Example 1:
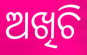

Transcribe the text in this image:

ଅଖିଚି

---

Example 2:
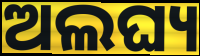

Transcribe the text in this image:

ଅଲଘ୍ୟ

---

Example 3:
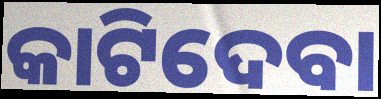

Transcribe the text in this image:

କାଟିଦେବା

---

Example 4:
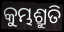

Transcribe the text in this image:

କୁମ୍ଭଶ୍ରୁତି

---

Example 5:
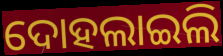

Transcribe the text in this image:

ଦୋହଲାଇଲି